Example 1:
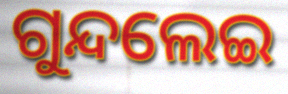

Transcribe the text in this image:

ଗୁନ୍ଦଲେଇ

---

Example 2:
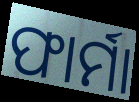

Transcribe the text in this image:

ଫାର୍ମା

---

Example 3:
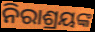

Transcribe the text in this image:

ନିରାଶ୍ରୟଙ୍କ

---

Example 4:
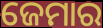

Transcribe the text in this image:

ଜେମାର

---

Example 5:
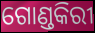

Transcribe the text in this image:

ଗୋଣ୍ଡକିରୀ